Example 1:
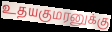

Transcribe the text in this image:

உதயகுமரனுக்கு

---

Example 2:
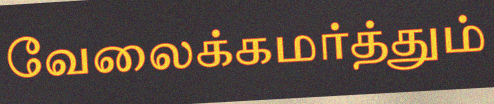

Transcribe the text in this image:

வேலைக்கமர்த்தும்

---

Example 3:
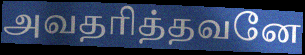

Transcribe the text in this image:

அவதரித்தவனே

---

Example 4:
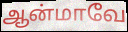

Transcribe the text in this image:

ஆன்மாவே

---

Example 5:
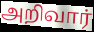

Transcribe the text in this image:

அறிவார்